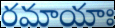
రమాయాః